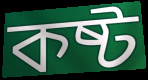
কষ্ট